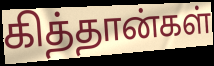
கித்தான்கள்